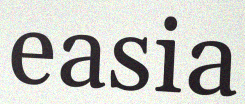
easia